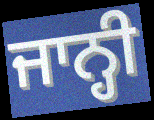
ਜਾਨ੍ਹੀ